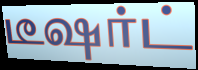
டீஷர்ட்